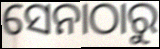
ସେନାଠାରୁ